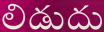
లిడుదు